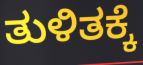
ತುಳಿತಕ್ಕೆ